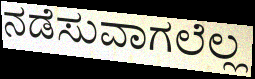
ನಡೆಸುವಾಗಲೆಲ್ಲ